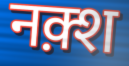
नक़्श